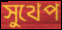
সুথেপ